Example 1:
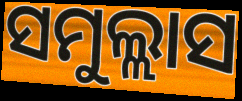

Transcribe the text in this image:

ସମୁଲ୍ଲାସ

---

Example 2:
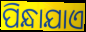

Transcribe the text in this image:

ପିନ୍ଧାଯାଏ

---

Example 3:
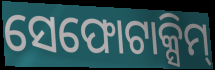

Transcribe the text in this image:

ସେଫୋଟାକ୍ସିମ୍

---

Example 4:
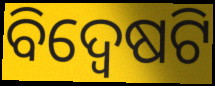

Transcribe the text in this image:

ବିଦ୍ୱେଷଟି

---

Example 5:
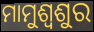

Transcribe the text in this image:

ମାମୁଶ୍ବଶୁର